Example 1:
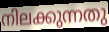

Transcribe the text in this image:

നിലക്കുന്നതു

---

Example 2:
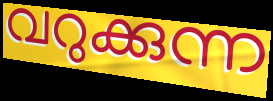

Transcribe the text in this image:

വറുക്കുന്ന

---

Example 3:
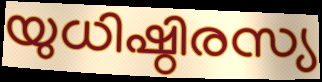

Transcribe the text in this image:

യുധിഷ്ഠിരസ്യ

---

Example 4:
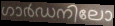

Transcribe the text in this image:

ഗാർഡനിലോ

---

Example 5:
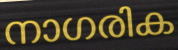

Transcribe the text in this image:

നാഗരിക